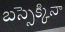
బస్సెక్కినా